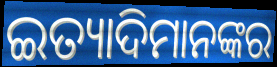
ଇତ୍ୟାଦିମାନଙ୍କର